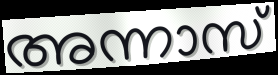
അന്നാസ്